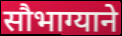
सौभाग्याने